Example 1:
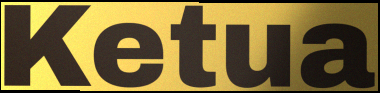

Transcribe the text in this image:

Ketua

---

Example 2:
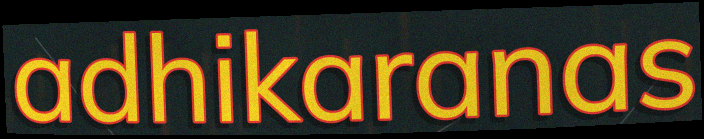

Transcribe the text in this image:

adhikaranas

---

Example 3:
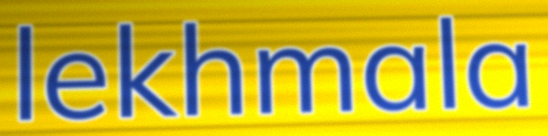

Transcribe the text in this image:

lekhmala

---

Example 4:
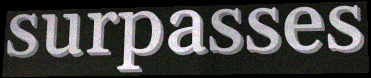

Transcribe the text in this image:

surpasses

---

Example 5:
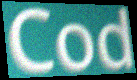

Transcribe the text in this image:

Cod